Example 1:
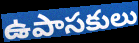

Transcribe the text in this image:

ఉపాసకులు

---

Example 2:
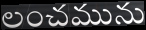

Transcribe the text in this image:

లంచమును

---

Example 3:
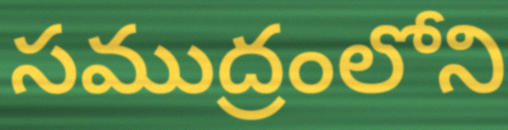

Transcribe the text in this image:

సముద్రంలోని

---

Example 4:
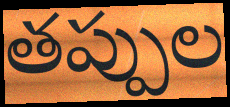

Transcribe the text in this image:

తప్పుల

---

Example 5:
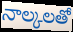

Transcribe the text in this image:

నాల్కలతో